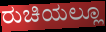
ರುಚಿಯಲ್ಲೂ